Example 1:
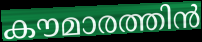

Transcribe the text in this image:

കൗമാരത്തിൻ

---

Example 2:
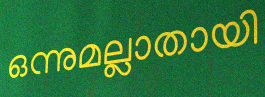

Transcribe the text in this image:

ഒന്നുമല്ലാതായി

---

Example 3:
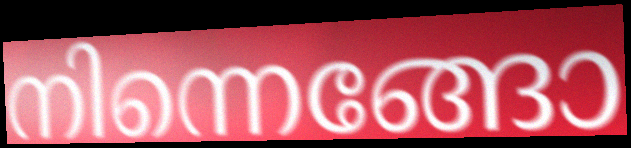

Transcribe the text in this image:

നിന്നെങ്ങോ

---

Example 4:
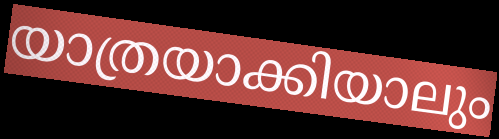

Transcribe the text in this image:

യാത്രയാക്കിയാലും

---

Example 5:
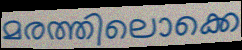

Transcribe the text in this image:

മരത്തിലൊക്കെ